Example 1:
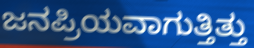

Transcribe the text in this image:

ಜನಪ್ರಿಯವಾಗುತ್ತಿತ್ತು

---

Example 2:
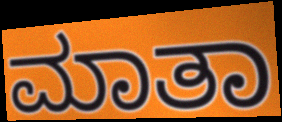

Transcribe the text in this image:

ಮಾತಾ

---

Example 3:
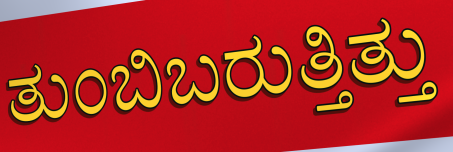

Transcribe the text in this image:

ತುಂಬಿಬರುತ್ತಿತ್ತು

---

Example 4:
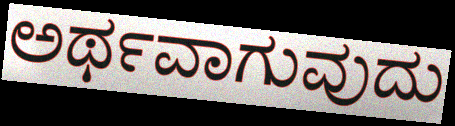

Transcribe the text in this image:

ಅರ್ಥವಾಗುವುದು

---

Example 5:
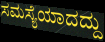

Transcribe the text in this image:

ಸಮಸ್ಯೆಯಾದದ್ದು